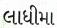
લાધીમા